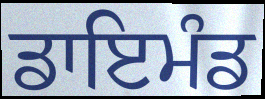
ਡਾਇਮੰਡ